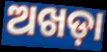
ଅଖଡ଼ା